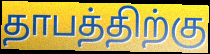
தாபத்திற்கு